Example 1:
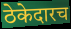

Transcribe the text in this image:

ठेकेदारच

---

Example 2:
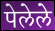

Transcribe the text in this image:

पेलेले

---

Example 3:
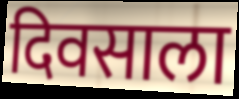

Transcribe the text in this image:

दिवसाला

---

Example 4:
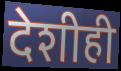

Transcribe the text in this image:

देशीही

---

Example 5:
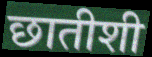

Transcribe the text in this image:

छातीशी